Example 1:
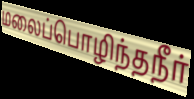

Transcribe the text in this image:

மலைப்பொழிந்தநீர்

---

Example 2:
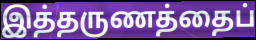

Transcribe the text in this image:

இத்தருணத்தைப்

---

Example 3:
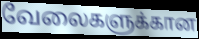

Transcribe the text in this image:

வேலைகளுக்கான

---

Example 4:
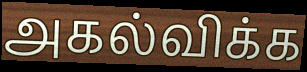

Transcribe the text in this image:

அகல்விக்க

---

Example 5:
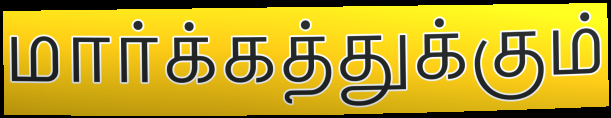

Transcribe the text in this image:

மார்க்கத்துக்கும்